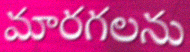
మారగలను